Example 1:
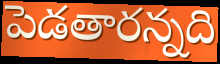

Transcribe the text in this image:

పెడతారన్నది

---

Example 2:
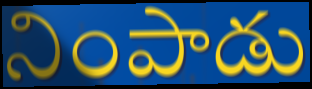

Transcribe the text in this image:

నింపాడు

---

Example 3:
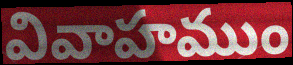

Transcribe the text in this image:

వివాహముం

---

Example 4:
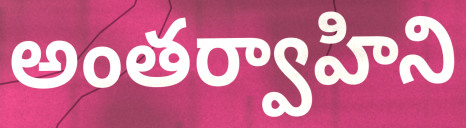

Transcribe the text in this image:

అంతర్వాహిని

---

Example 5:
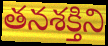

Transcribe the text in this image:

తనశక్తిని